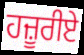
ਹਜ਼ੂਰੀਏ